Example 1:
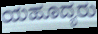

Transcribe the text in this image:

ಯಹೂದ್ಯರು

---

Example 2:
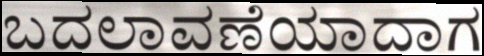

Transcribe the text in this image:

ಬದಲಾವಣೆಯಾದಾಗ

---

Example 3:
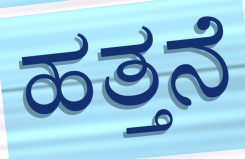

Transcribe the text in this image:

ಹತ್ತನೆ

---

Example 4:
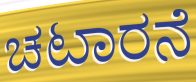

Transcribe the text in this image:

ಚಟಾರನೆ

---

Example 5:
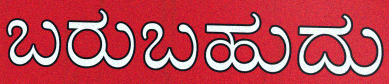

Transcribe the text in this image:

ಬರುಬಹುದು